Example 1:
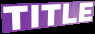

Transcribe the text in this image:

TITLE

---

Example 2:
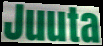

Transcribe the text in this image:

Juuta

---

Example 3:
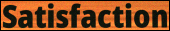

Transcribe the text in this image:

Satisfaction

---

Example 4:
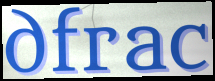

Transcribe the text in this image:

dfrac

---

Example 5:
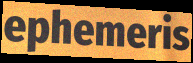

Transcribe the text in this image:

ephemeris